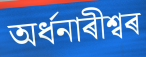
অৰ্ধনাৰীশ্বৰ